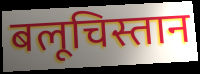
बलूचिस्‍तान